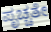
ಪೃಚ್ಚತೇ